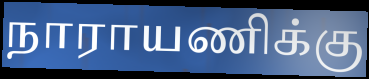
நாராயணிக்கு